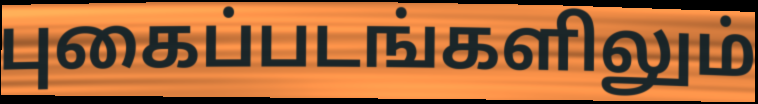
புகைப்படங்களிலும்